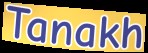
Tanakh